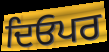
ਦਿਓਪਰ